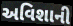
અવિશાની